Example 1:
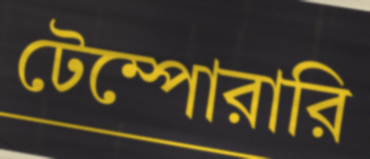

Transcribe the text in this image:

টেম্পোরারি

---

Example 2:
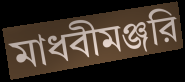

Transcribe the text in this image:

মাধবীমঞ্জরি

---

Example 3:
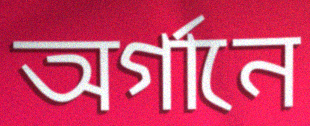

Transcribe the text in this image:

অর্গানে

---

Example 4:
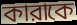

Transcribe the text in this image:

কারাকে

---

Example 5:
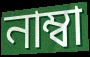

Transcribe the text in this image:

নাম্বা